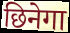
छिनेगा